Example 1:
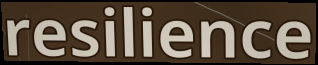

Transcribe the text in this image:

resilience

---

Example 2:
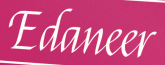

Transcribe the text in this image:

Edaneer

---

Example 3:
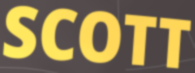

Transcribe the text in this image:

SCOTT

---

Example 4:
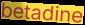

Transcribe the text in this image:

betadine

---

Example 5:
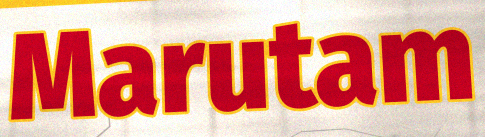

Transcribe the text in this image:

Marutam